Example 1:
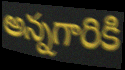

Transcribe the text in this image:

అన్నగారికి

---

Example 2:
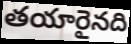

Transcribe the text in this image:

తయారైనది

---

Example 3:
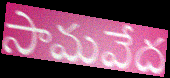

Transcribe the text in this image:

సామవేద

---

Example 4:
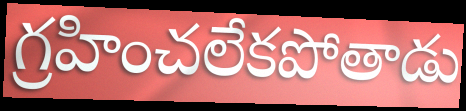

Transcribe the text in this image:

గ్రహించలేకపోతాడు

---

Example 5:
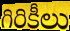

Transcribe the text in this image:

గిరికీలు